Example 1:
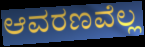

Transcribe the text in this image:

ಆವರಣವೆಲ್ಲ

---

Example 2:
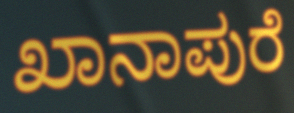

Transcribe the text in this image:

ಖಾನಾಪುರೆ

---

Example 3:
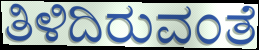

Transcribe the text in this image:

ತಿಳಿದಿರುವಂತೆ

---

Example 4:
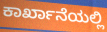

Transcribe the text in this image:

ಕಾರ್ಖಾನೆಯಲ್ಲಿ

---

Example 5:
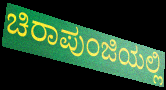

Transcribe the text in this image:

ಚಿರಾಪುಂಜಿಯಲ್ಲಿ